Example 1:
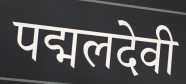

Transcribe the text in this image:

पद्मलदेवी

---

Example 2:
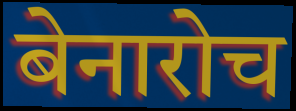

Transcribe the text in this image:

बेनारोच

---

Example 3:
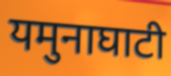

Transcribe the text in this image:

यमुनाघाटी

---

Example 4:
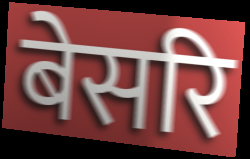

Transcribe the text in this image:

बेसरि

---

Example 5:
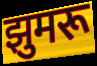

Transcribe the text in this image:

झुमरू